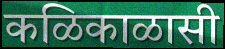
कळिकाळासी